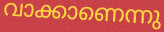
വാക്കാണെന്നു